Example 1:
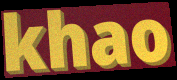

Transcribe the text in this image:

khao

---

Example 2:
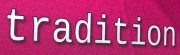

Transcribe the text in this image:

tradition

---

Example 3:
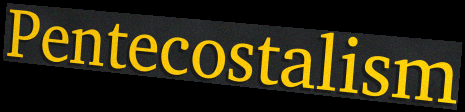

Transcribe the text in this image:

Pentecostalism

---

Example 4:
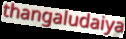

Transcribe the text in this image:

thangaludaiya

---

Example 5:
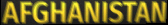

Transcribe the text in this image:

AFGHANISTAN